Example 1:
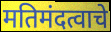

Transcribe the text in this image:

मतिमंदत्वाचे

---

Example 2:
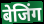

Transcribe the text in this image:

बेजिंग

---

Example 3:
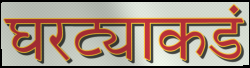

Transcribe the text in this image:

घरट्याकडं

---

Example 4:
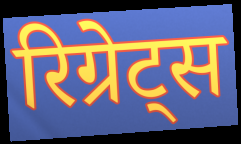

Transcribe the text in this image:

रिग्रेट्स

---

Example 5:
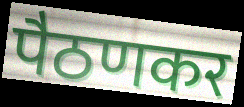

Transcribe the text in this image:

पैठणकर